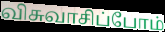
விசுவாசிப்போம்